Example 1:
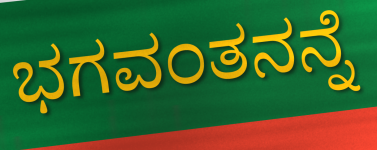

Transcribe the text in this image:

ಭಗವಂತನನ್ನೆ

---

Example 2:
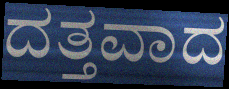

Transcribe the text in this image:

ದತ್ತವಾದ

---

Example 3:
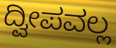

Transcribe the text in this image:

ದ್ವೀಪವಲ್ಲ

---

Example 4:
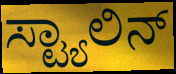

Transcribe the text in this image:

ಸ್ಟ್ಯಾಲಿನ್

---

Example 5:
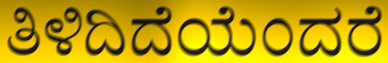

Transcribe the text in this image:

ತಿಳಿದಿದೆಯೆಂದರೆ